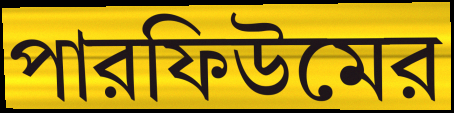
পারফিউমের